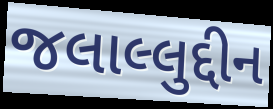
જલાલ્લુદ્દીન